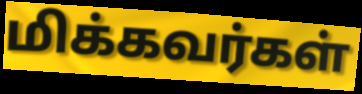
மிக்கவர்கள்